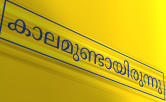
കാലമുണ്ടായിരുന്നു